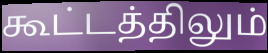
கூட்டத்திலும்